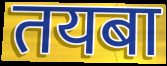
तयबा